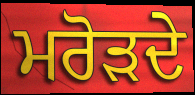
ਮਰੋੜਦੇ